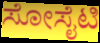
ಸೋಸೈಟಿ